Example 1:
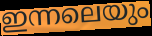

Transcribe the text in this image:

ഇന്നലെയും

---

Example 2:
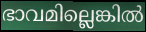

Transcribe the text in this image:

ഭാവമില്ലെങ്കിൽ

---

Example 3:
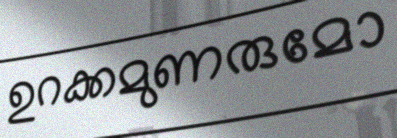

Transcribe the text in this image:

ഉറക്കമുണരുമോ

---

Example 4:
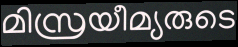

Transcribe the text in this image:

മിസ്രയീമ്യരുടെ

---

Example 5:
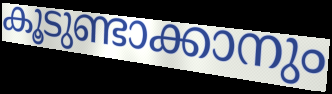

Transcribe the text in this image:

കൂടുണ്ടാക്കാനും